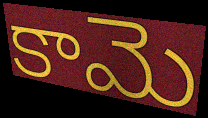
కామె